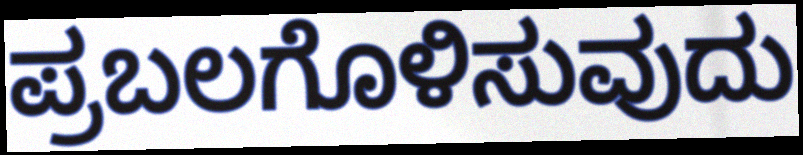
ಪ್ರಬಲಗೊಳಿಸುವುದು